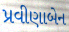
પ્રવીણાબેન